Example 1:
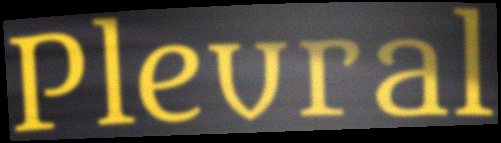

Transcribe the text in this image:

Pleural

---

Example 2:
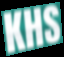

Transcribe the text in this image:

KHS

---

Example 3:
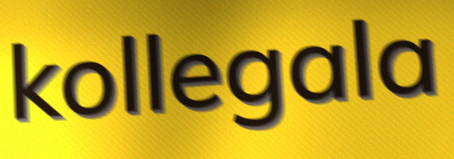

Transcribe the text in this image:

kollegala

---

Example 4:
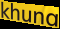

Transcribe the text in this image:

khuna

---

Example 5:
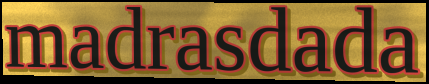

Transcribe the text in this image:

madrasdada